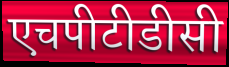
एचपीटीडीसी